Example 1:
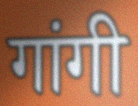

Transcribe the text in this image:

गांगी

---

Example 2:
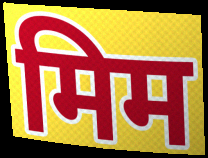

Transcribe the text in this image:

मिम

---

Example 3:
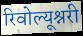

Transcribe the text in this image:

रिवोल्यूश्नरी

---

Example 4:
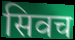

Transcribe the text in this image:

सिवच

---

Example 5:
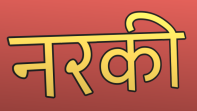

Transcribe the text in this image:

नरकी